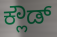
ಕ್ಲೌಡ್